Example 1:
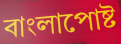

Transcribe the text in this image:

বাংলাপোষ্ট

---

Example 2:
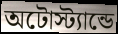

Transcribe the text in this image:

অটোস্ট্যান্ডে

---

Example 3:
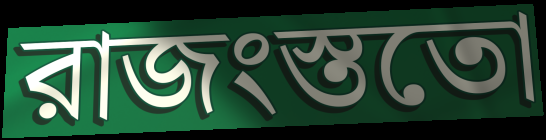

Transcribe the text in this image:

রাজংস্ততো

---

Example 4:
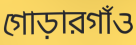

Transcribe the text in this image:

গোড়ারগাঁও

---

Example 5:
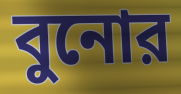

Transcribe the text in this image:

বুনোর